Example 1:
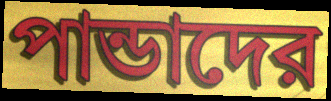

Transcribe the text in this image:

পান্ডাদের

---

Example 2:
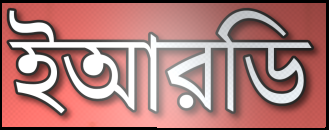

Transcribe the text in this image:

ইআরডি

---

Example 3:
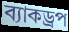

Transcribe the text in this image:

ব্যাকড্রপ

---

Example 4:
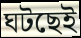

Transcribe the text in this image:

ঘটছেই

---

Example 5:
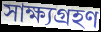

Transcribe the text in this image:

সাক্ষ্যগ্রহণ